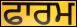
ਫਾਰਮ